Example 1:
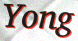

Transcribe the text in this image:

Yong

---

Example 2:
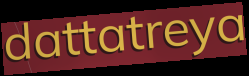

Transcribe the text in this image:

dattatreya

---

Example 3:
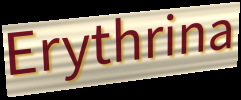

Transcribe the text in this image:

Erythrina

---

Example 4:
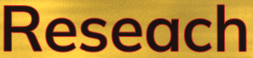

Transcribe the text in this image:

Reseach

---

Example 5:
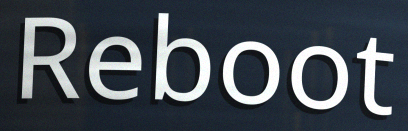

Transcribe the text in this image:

Reboot